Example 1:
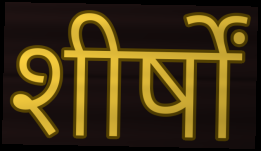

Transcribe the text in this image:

शीर्षों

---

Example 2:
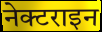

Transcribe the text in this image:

नेक्टराइन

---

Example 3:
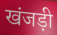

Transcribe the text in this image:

खंजड़ी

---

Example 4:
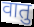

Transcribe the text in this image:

वातु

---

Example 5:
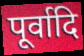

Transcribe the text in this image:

पूर्वादि